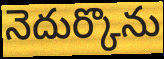
నెదుర్కొను